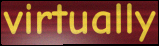
virtually